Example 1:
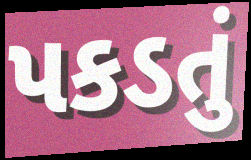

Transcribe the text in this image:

પકડતું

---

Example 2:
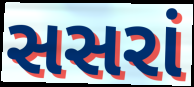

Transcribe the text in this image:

સસરાં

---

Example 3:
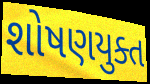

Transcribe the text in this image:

શોષણયુક્ત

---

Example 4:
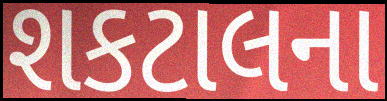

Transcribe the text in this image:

શકટાલના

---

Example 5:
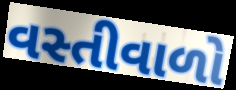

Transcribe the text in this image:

વસ્તીવાળો